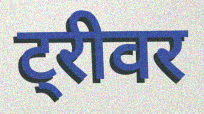
ट्रीवर